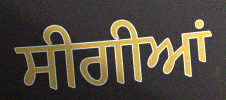
ਸੀਗੀਆਂ